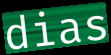
dias